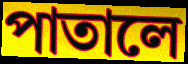
পাতালে